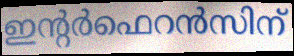
ഇന്റർഫെറൻസിന്